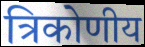
त्रिकोणीय